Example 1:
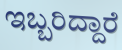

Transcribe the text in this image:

ಇಬ್ಬರಿದ್ದಾರೆ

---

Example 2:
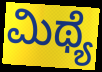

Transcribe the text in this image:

ಮಿಥ್ಯೆ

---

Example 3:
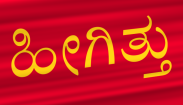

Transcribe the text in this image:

ಹೀಗಿತ್ತು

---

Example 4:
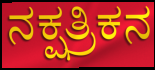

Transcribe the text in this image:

ನಕ್ಷತ್ರಿಕನ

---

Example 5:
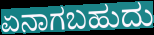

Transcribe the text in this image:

ಏನಾಗಬಹುದು